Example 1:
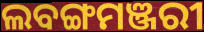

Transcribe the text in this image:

ଲବଙ୍ଗମଞ୍ଜରୀ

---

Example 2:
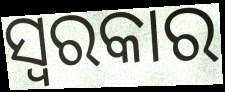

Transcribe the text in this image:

ସ୍ୱରକାର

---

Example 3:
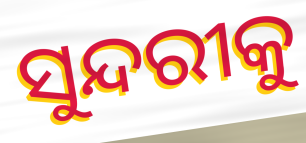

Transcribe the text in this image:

ସୁନ୍ଦରୀକୁ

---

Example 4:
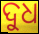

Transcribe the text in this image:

ଦୁଧ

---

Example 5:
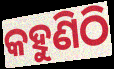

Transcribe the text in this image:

କହୁଣିଠି